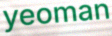
yeoman